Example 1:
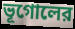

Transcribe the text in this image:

ভূগোলের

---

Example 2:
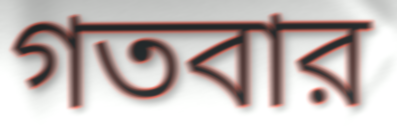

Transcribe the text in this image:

গতবার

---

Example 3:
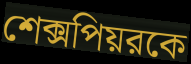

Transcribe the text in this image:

শেক্সপিয়রকে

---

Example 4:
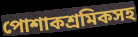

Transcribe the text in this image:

পোশাকশ্রমিকসহ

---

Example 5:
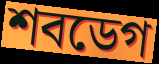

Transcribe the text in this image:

শবডেগ